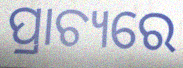
ପ୍ରାଚ୍ୟରେ